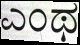
ಎಂಥ